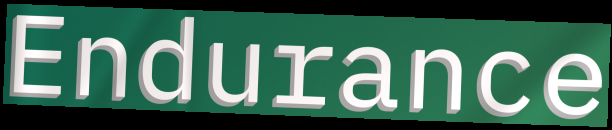
Endurance